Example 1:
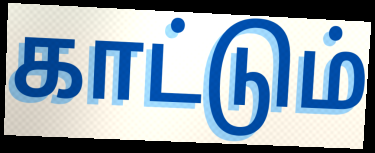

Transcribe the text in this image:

காட்டும்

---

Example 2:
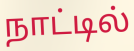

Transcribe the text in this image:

நாட்டில்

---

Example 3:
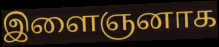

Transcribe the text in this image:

இளைஞனாக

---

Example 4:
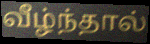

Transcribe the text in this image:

வீழ்ந்தால்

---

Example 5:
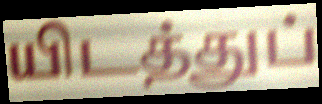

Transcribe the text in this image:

யிடத்துப்